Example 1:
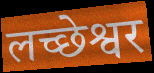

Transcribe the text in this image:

लच्छेश्वर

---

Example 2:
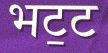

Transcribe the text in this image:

भट॒ट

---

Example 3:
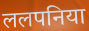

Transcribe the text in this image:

ललपनिया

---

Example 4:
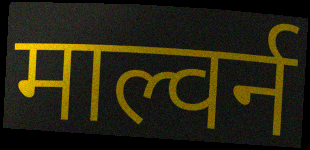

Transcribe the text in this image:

माल्वर्न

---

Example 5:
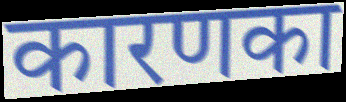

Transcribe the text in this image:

कारणका